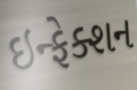
ઇન્ફેક્શન